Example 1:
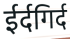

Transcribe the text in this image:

ईर्दगिर्द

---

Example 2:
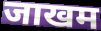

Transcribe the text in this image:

जाखम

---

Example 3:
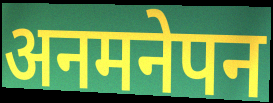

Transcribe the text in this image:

अनमनेपन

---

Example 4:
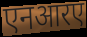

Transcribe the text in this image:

एनआरए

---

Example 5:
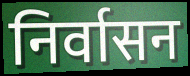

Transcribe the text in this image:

निर्वासन